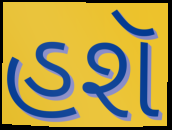
હશૅ